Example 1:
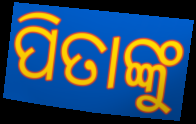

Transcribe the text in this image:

ପିତାଙ୍କୁ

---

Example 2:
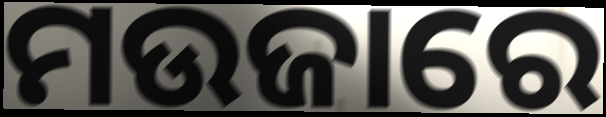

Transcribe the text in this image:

ମଉଜାରେ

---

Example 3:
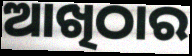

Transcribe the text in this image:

ଆଖିଠାର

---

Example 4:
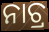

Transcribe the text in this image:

ନାଚ୍ର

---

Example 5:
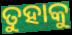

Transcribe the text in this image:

ତୁହାକୁ